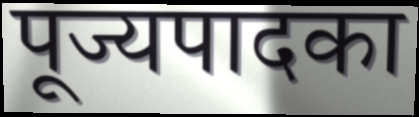
पूज्यपादका